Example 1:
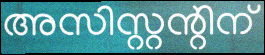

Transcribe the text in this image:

അസിസ്റ്റന്റിന്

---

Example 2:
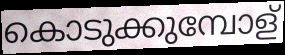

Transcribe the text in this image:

കൊടുക്കുമ്പോള്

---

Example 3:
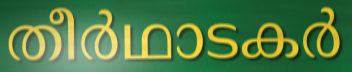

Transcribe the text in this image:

തീർഥാടകർ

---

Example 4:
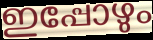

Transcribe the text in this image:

ഇപ്പോഴും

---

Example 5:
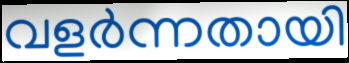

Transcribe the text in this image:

വളർന്നതായി